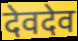
देवदेव